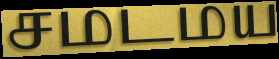
சமடமய